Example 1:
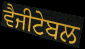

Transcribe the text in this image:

ਵੈਜੀਟੇਬਲ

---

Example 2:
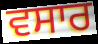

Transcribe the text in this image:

ਵਸਾਰ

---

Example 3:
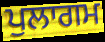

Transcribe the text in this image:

ਪੁਲਾਗਮ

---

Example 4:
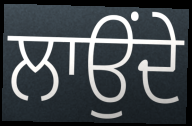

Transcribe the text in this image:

ਲਾਉਂਦੇ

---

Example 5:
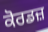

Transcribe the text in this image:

ਕੋਰਡਜ਼